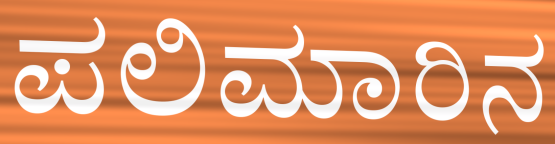
ಪಲಿಮಾರಿನ